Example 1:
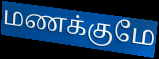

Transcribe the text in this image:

மணக்குமே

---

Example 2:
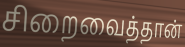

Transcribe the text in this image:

சிறைவைத்தான்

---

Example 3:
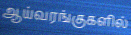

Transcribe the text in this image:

ஆய்வரங்குகளில்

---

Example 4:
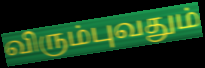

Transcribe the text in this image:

விரும்புவதும்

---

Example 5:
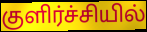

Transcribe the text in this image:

குளிர்ச்சியில்